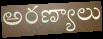
అరణ్యాలు